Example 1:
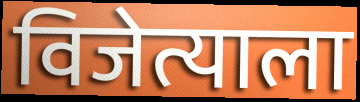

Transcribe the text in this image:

विजेत्याला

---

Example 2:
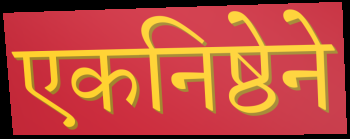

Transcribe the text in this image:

एकनिष्ठेने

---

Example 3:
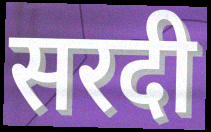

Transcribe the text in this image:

सरदी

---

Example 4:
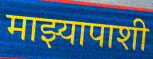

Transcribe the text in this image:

माझ्यापाशी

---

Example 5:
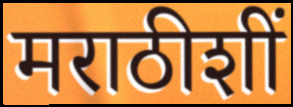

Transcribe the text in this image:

मराठीशीं